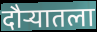
दौऱ्यातला